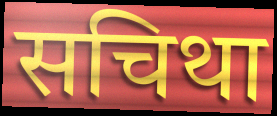
सचिथा